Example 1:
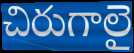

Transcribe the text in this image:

చిరుగాలై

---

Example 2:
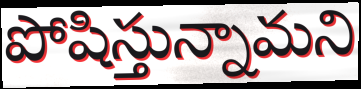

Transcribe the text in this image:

పోషిస్తున్నామని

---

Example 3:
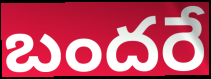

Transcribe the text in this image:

బందరే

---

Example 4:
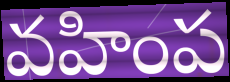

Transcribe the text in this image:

వహింప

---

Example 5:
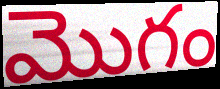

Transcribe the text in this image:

మొగం